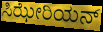
ಸಿಝೇರಿಯನ್